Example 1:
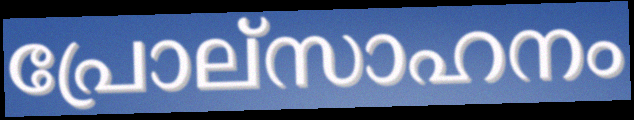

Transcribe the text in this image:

പ്രോല്സാഹനം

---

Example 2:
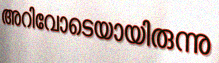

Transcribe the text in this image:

അറിവോടെയായിരുന്നു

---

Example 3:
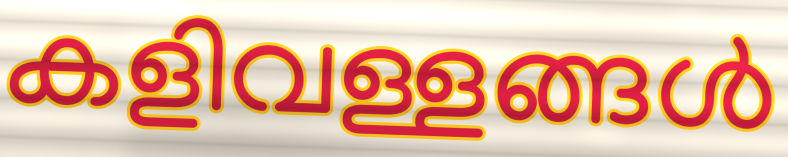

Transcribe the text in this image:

കളിവള്ളങ്ങൾ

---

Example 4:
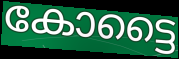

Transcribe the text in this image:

കോട്ടൈ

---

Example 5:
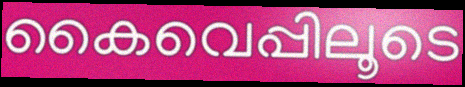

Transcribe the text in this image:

കൈവെപ്പിലൂടെ